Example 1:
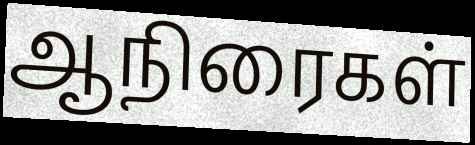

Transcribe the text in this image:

ஆநிரைகள்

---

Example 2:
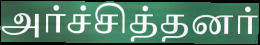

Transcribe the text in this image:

அர்ச்சித்தனர்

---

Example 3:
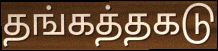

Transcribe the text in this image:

தங்கத்தகடு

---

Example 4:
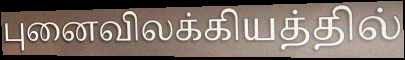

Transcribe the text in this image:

புனைவிலக்கியத்தில்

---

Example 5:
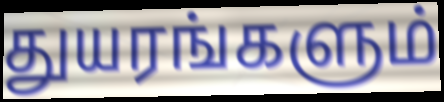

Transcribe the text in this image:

துயரங்களும்